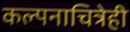
कल्पनाचित्रेही